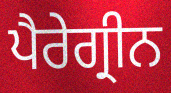
ਪੈਰੇਗ੍ਰੀਨ